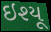
ઇશ્યૂ